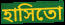
হাসিতো